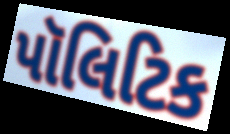
પૉલિટિક